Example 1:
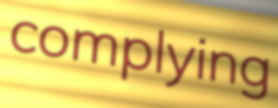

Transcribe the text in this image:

complying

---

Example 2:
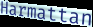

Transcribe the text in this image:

Harmattan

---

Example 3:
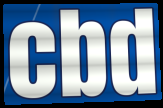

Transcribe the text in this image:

cbd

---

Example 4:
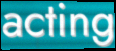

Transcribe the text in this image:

acting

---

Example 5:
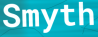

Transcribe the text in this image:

Smyth